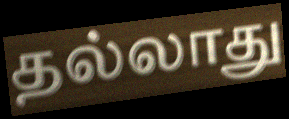
தல்லாது